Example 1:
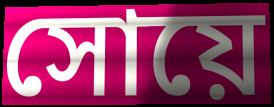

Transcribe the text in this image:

সোয়ে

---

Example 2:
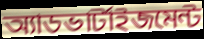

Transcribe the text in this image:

অ্যাডভার্টাইজমেন্ট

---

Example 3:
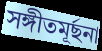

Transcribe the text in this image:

সঙ্গীতমূর্ছনা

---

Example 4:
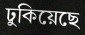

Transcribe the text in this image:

ঢুকিয়েছে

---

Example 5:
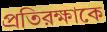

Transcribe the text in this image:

প্রতিরক্ষাকে